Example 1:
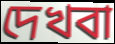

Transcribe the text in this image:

দেখবা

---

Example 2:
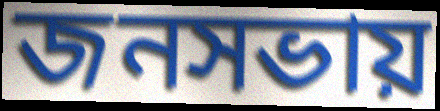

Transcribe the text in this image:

জনসভায়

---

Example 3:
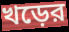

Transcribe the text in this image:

খড়ের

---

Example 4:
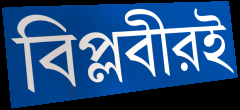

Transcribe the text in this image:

বিপ্লবীরই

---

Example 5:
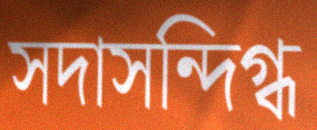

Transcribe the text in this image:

সদাসন্দিগ্ধ